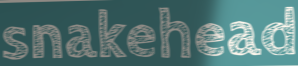
snakehead